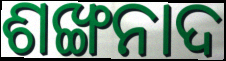
ଶଙ୍ଖନାଦ